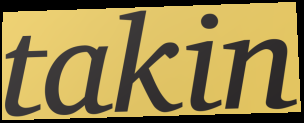
takin